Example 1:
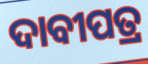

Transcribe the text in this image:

ଦାବୀପତ୍ର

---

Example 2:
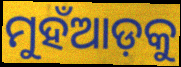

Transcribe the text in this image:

ମୁହଁଆଡ଼କୁ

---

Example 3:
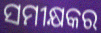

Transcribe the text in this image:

ସମୀକ୍ଷକର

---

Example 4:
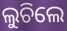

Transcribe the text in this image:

ଲୁଚିଲେ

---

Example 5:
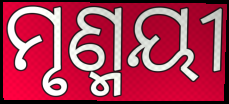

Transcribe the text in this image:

ମୃଣ୍ମୟୀ